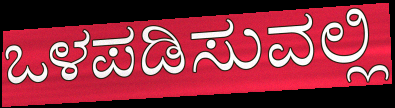
ಒಳಪಡಿಸುವಲ್ಲಿ